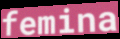
femina